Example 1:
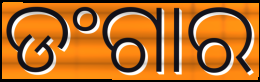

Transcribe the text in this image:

ଡଂଗାର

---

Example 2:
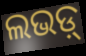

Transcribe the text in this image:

ଲଭଡ଼୍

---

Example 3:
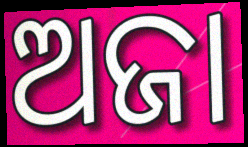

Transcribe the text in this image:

ଅଜା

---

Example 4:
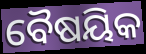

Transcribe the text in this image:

ବୈଷୟିକ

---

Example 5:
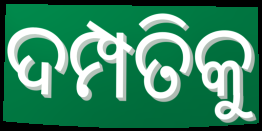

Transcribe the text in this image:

ଦମ୍ପତିକୁ